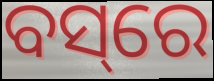
ବସ୍‌ରେ